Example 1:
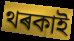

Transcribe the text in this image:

থৰকাই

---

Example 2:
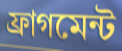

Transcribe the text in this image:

ফ্ৰাগমেন্ট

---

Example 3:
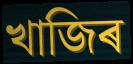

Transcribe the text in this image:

খাজিৰ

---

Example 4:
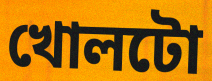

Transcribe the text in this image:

খোলটো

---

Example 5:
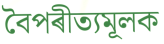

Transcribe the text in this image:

বৈপৰীত্যমূলক